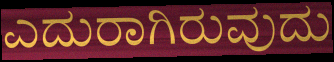
ಎದುರಾಗಿರುವುದು